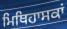
ਮਿਥਿਹਾਸਕਾਂ